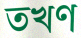
তখণ